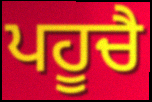
ਪਹੂਚੈ